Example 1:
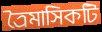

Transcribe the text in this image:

ত্রৈমাসিকটি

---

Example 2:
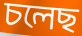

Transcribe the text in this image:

চলেছ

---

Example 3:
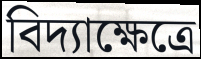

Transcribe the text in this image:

বিদ্যাক্ষেত্রে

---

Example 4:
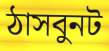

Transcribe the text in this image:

ঠাসবুনট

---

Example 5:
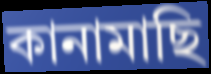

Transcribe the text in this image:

কানামাছি